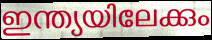
ഇന്ത്യയിലേക്കും